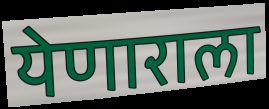
येणाराला